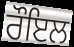
ਰੌਇਲ